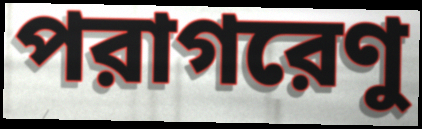
পরাগরেণু